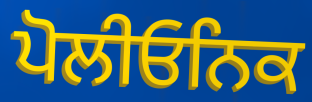
ਪੋਲੀਓਨਿਕ